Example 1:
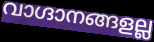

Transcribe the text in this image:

വാഗ്ദാനങ്ങളല്ല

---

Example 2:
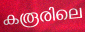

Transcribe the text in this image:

കരൂരിലെ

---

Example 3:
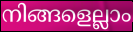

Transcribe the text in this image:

നിങ്ങളെല്ലാം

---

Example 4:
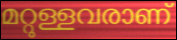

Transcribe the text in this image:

മറ്റുള്ളവരാണ്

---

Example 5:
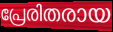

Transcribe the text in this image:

പ്രേരിതരായ